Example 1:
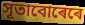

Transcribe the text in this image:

সূতাবোৰেৰে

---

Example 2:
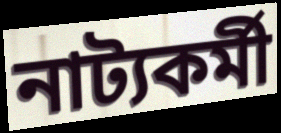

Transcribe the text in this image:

নাট্যকৰ্মী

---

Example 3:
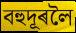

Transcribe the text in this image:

বহুদূৰলৈ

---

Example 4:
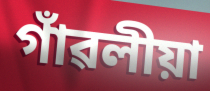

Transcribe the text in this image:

গাঁৱলীয়া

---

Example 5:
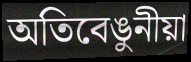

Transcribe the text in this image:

অতিবেঙুনীয়া